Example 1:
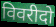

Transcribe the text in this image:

विवरीदो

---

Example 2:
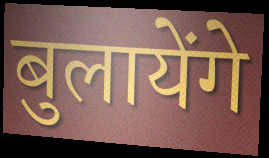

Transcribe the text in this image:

बुलायेंगे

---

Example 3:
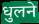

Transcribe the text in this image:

धुलने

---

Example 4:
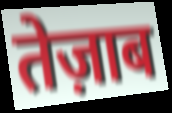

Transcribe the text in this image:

तेज़ाब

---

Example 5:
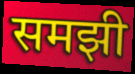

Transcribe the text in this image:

समझी